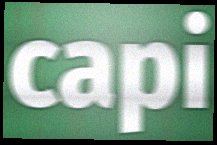
capi